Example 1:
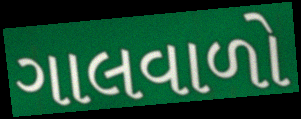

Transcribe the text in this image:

ગાલવાળો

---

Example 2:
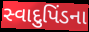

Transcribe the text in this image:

સ્વાદુપિંડના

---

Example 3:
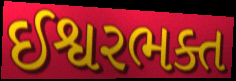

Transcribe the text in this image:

ઈશ્વરભક્ત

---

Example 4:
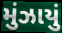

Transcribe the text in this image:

મુંઝાયું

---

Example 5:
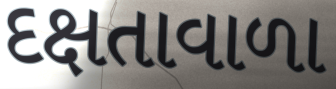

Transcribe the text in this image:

દક્ષતાવાળા